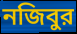
নজিবুর